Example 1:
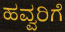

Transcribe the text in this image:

ಹವ್ವರಿಗೆ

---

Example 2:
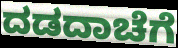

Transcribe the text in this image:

ದಡದಾಚೆಗೆ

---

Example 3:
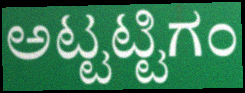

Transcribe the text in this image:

ಅಟ್ಟಟ್ಟಿಗಂ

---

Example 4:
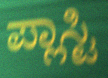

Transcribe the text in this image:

ಪ್ಲಾಸ್ಟಿ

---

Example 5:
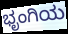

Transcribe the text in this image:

ಭೃಂಗಿಯ